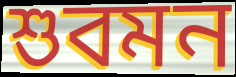
শুবমন